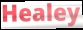
Healey